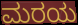
ಮರಯ